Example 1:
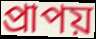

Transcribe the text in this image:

প্রাপয়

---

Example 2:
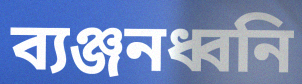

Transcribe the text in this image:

ব্যঞ্জনধ্বনি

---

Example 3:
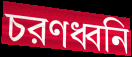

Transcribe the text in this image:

চরণধ্বনি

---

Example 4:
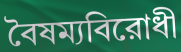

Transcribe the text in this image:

বৈষম্যবিরোধী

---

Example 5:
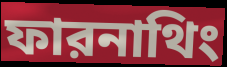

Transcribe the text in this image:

ফারনাথিং